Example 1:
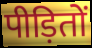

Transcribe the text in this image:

पीड़ितों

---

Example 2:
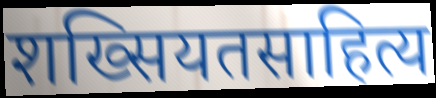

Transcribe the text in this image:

शख्सियतसाहित्य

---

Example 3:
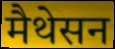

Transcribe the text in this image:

मैथेसन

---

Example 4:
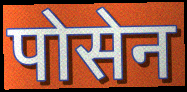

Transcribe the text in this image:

पोसेन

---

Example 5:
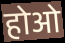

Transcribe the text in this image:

होओ